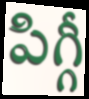
పిగ్గీ